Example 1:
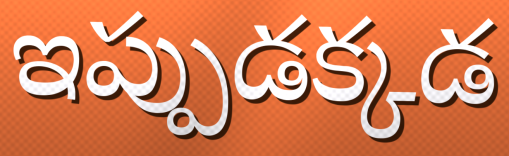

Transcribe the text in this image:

ఇప్పుడక్కడ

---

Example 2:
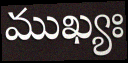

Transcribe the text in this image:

ముఖ్యః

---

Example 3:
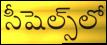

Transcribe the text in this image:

సీషెల్స్‌లో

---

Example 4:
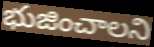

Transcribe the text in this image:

భుజించాలని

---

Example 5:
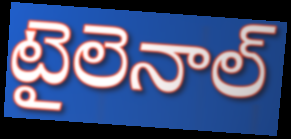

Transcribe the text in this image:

టైలెనాల్